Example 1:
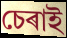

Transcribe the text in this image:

চেৰাই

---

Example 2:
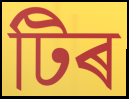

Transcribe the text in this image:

টিৰ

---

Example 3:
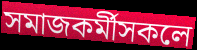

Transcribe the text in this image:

সমাজকৰ্মীসকলে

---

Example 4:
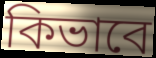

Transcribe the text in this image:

কিভাবে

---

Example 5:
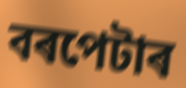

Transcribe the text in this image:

বৰপেটাৰ